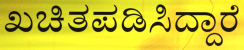
ಖಚಿತಪಡಿಸಿದ್ದಾರೆ